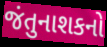
જંતુનાશકનો